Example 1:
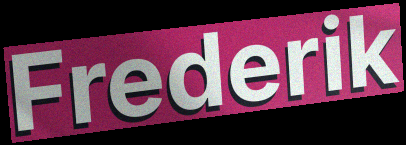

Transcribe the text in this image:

Frederik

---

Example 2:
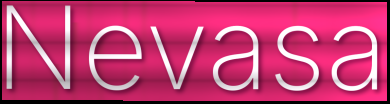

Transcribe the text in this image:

Nevasa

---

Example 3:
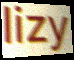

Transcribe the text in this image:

lizy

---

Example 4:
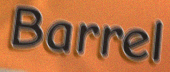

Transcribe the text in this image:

Barrel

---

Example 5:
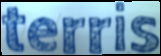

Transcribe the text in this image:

terris